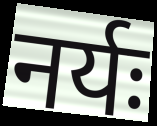
नर्यः